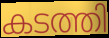
കടത്തി